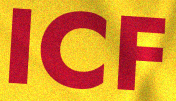
ICF